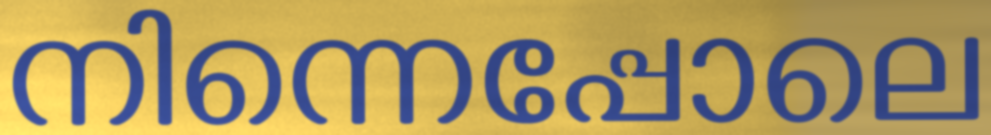
നിന്നെപ്പോലെ